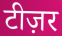
टीज़र